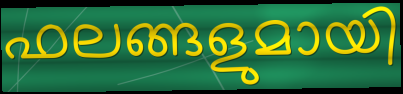
ഫലങ്ങളുമായി